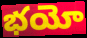
భయో